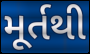
મૂર્તથી